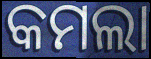
କମଲା